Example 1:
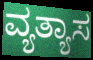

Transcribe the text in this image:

ವ್ಯತ್ಯಾಸ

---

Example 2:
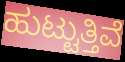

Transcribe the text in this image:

ಹುಟ್ಟುತ್ತಿವೆ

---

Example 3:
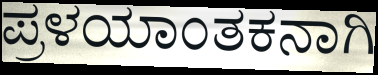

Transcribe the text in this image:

ಪ್ರಳಯಾಂತಕನಾಗಿ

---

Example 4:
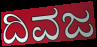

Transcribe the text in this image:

ದಿವಜ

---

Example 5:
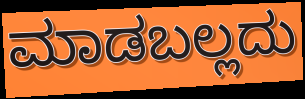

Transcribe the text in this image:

ಮಾಡಬಲ್ಲದು